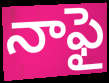
నాఫై